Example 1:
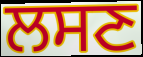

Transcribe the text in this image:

ਲਸਣ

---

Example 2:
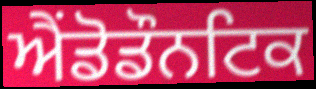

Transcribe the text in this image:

ਐਂਡੋਡੌਨਟਿਕ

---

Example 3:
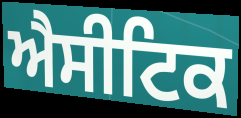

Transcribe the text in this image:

ਐਸੀਟਿਕ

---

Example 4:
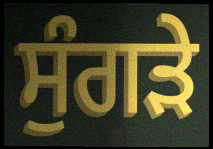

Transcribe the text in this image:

ਸੁੰਗੜੇ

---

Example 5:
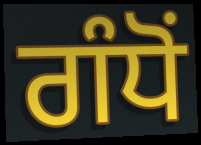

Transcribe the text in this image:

ਗੰਧੋਂ